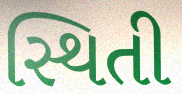
સ્થિતી